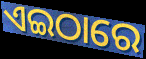
ଏଇଠାରେ